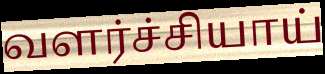
வளர்ச்சியாய்